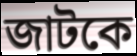
জাটকে